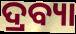
ଦ୍ରବ୍ୟା